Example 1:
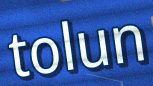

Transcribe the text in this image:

tolun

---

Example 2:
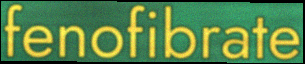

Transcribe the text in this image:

fenofibrate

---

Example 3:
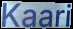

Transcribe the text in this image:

Kaari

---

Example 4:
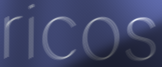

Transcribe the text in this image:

ricos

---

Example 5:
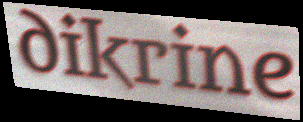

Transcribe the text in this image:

dikrine